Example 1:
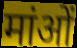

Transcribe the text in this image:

मांओं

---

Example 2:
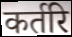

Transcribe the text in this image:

कर्तरि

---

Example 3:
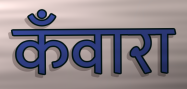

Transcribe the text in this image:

कँवारा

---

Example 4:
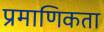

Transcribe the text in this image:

प्रमाणिकता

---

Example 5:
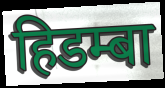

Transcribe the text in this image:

हिडम्बा